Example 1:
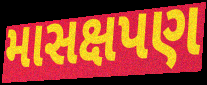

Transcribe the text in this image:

માસક્ષપણ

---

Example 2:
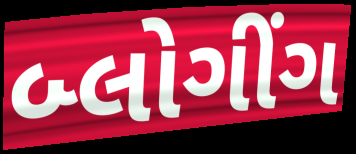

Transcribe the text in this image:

બ્લોગીંગ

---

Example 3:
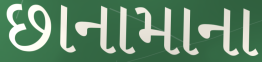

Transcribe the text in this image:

છાનામાના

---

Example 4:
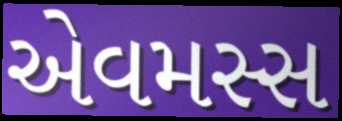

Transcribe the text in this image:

એવમસ્સ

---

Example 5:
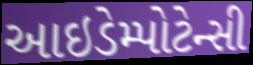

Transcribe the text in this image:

આઇડેમ્પોટેન્સી